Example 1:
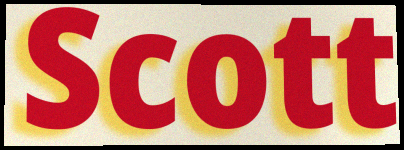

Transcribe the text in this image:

Scott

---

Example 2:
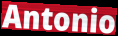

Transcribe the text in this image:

Antonio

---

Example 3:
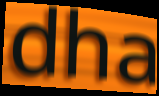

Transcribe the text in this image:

dha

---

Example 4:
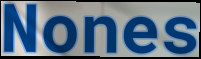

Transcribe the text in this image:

Nones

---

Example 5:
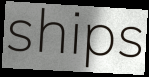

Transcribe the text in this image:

ships